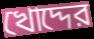
খোদ্দের